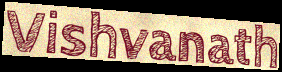
Vishvanath